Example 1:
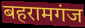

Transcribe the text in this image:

बहरामगंज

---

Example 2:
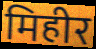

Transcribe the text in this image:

मिहीर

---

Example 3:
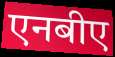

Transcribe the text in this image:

एनबीए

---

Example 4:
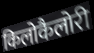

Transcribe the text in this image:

किलोकैलोरी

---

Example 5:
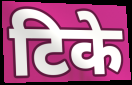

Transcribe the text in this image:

टिके